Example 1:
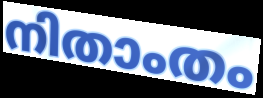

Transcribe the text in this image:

നിതാംതം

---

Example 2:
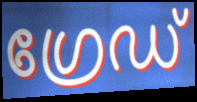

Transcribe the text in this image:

ഗ്രേഡ്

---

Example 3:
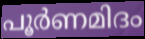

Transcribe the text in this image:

പൂർണമിദം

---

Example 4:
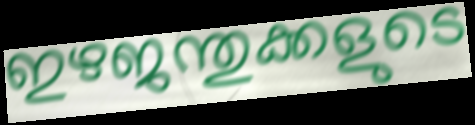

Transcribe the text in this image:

ഇഴജന്തുക്കളുടെ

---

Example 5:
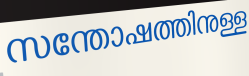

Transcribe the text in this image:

സന്തോഷത്തിനുള്ള